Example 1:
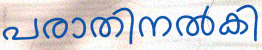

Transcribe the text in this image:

പരാതിനൽകി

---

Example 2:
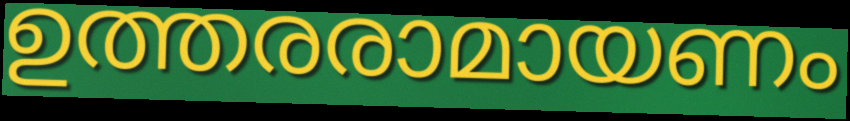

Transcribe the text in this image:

ഉത്തരരാമായണം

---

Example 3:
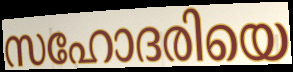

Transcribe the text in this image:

സഹോദരിയെ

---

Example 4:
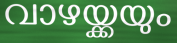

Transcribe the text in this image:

വാഴയ്ക്കയും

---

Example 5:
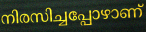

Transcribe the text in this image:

നിരസിച്ചപ്പോഴാണ്